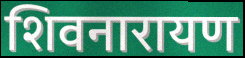
शिवनारायण